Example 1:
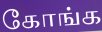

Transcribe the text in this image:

கோங்க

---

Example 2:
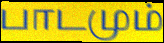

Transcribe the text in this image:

பாடமும்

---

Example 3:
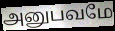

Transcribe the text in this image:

அனுபவமே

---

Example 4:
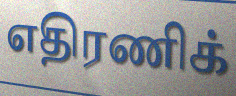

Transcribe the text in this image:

எதிரணிக்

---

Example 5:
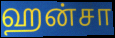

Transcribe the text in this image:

ஹன்சா